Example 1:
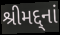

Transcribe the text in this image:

શ્રીમદ્દ્નાં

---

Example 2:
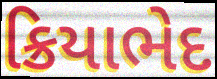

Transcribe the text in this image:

ક્રિયાભેદ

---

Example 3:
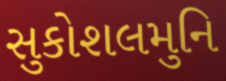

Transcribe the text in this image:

સુકોશલમુનિ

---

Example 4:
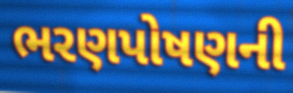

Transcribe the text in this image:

ભરણપોષણની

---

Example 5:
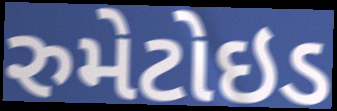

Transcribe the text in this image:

રુમેટોઇડ